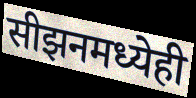
सीझनमध्येही